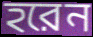
হরেন